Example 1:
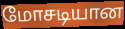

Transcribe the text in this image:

மோசடியான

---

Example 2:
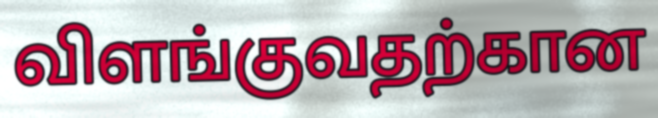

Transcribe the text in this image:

விளங்குவதற்கான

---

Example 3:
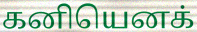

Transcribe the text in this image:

கனியெனக்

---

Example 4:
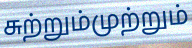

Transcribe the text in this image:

சுற்றும்முற்றும்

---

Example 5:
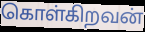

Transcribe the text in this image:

கொள்கிறவன்